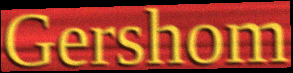
Gershom